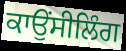
ਕਾਉਂਸੀਲਿੰਗ